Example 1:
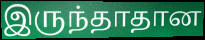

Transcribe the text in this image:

இருந்தாதான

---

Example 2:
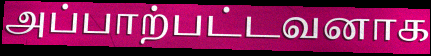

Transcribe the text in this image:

அப்பாற்பட்டவனாக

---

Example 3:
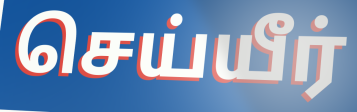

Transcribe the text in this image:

செய்யீர்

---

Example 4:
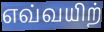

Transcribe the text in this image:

எவ்வயிற்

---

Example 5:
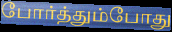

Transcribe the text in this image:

போர்த்தும்போது